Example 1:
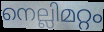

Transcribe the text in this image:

നെല്ലിമറ്റം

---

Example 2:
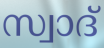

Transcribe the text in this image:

സ്വാദ്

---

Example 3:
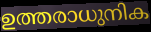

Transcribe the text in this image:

ഉത്തരാധുനിക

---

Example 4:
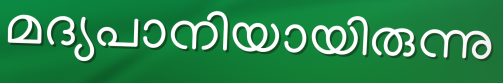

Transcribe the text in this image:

മദ്യപാനിയായിരുന്നു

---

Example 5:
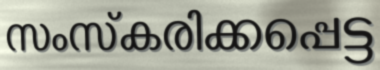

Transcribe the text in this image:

സംസ്‌കരിക്കപ്പെട്ട